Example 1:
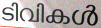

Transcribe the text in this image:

ടിവികൾ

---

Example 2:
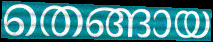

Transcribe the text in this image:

തെങ്ങായ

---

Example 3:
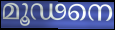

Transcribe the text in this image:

മൂഢനെ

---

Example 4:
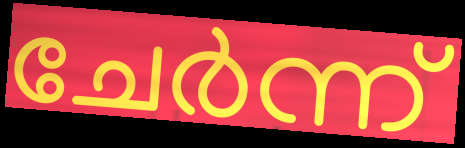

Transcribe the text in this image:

ചേർന്ന്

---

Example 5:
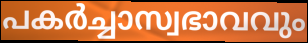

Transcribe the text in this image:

പകർച്ചാസ്വഭാവവും